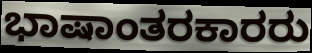
ಭಾಷಾಂತರಕಾರರು